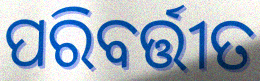
ପରିବର୍ତ୍ତୀତ